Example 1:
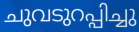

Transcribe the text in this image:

ചുവടുറപ്പിച്ചു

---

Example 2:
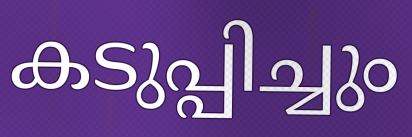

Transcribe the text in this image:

കടുപ്പിച്ചും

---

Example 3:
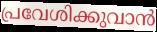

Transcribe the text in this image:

പ്രവേശിക്കുവാൻ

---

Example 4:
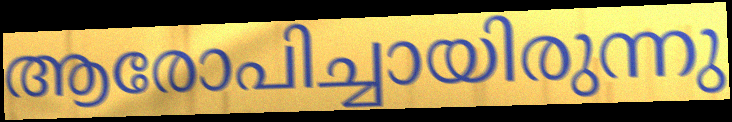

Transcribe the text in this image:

ആരോപിച്ചായിരുന്നു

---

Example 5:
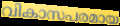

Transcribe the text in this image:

വികാസപരമായ